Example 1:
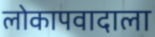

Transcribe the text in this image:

लोकापवादाला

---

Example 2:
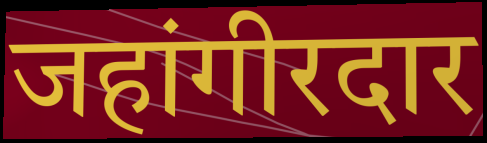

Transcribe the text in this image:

जहांगीरदार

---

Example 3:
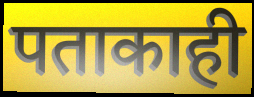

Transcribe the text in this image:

पताकाही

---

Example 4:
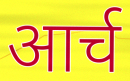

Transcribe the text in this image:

आर्च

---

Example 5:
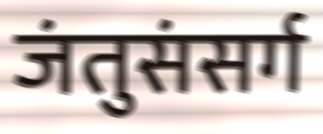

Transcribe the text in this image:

जंतुसंसर्ग